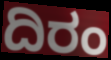
ದಿರಂ